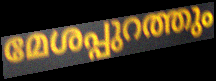
മേശപ്പുറത്തും